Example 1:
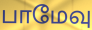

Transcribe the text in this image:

பாமேவு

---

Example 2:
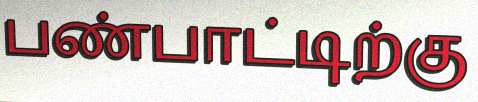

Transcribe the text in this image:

பண்பாட்டிற்கு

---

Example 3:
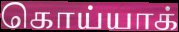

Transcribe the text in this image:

கொய்யாக்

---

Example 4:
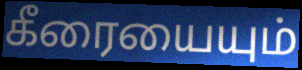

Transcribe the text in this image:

கீரையையும்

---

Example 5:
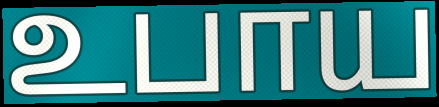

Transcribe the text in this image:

உபாய